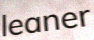
leaner